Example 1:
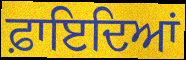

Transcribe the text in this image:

ਫ਼ਾਇਦਿਆਂ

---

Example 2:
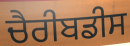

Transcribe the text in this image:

ਚੈਰੀਬਡੀਸ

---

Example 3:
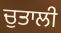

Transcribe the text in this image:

ਚੁਤਾਲੀ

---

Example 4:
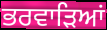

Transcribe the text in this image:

ਭਰਵਾੜਿਆਂ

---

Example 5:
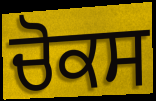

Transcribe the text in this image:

ਚੋਕਸ